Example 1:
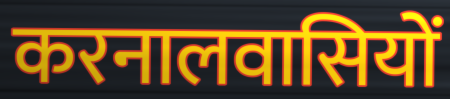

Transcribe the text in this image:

करनालवासियों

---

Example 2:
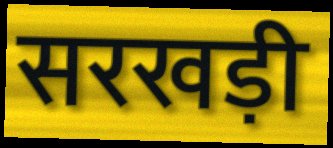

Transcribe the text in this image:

सरखड़ी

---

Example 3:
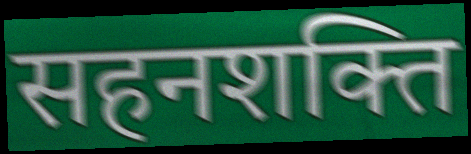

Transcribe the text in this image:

सहनशक्ति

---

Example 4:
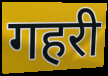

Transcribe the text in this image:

गहरी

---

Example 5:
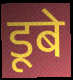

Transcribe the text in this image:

डूबे